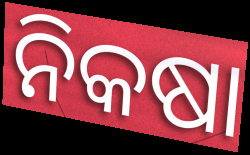
ନିକଷା